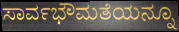
ಸಾರ್ವಭೌಮತೆಯನ್ನೂ